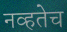
नव्हतेच